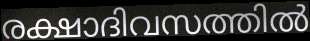
രക്ഷാദിവസത്തിൽ